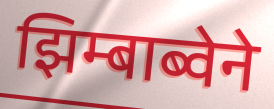
झिम्बाब्वेने